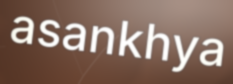
asankhya